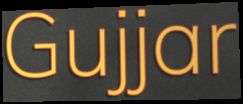
Gujjar